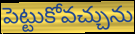
పెట్టుకోవచ్చును